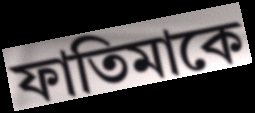
ফাতিমাকে